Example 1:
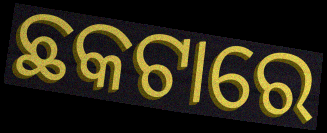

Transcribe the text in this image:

ଛକଟାରେ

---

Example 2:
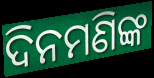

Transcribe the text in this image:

ଦିନମଣିଙ୍କ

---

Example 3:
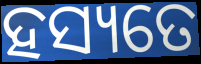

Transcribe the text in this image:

ହସ୍ୟତେ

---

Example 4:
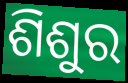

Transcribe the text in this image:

ଶିଶୁର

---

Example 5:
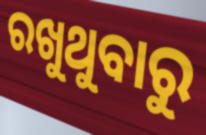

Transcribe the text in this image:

ରଖୁଥୁବାରୁ